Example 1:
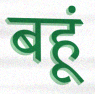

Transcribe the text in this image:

बहूं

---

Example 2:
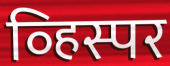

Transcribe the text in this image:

व्हिस्पर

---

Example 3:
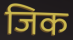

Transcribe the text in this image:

जिक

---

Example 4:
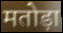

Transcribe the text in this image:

मतोड़ा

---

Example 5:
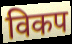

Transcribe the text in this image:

विकप